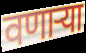
वणाऱ्या